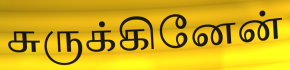
சுருக்கினேன்